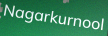
Nagarkurnool